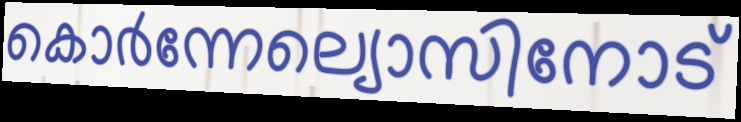
കൊർന്നേല്യൊസിനോട്